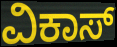
ವಿಕಾಸ್